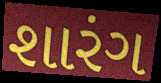
શારંગ